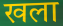
खला